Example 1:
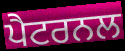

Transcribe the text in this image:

ਪੈਟਰਨਲ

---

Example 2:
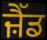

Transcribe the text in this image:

ਜ਼ੈੱਡ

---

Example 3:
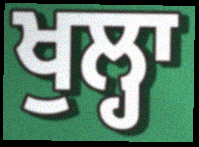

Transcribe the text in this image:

ਖੁਲ੍ਹਾ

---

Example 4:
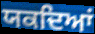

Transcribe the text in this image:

ਯਕਦਿਆਂ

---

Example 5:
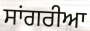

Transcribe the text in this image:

ਸਾਂਗਰੀਆ